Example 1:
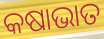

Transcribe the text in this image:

କଷାଭାତ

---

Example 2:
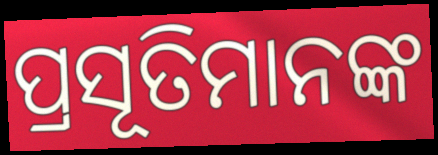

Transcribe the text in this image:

ପ୍ରସୂତିମାନଙ୍କ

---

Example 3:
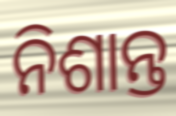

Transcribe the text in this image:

ନିଶାନ୍ତ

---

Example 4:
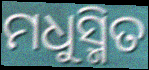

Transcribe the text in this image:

ମଧୁସ୍ମିତ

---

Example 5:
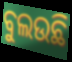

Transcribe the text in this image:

ବୁଲଉଛି